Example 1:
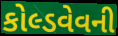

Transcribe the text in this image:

કોલ્ડવેવની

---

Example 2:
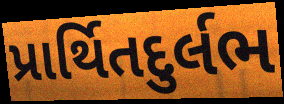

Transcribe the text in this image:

પ્રાર્થિતદુર્લભ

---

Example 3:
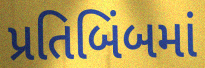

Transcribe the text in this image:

પ્રતિબિંબમાં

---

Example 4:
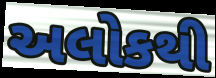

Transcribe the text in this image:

અલોકથી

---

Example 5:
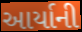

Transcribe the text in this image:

આર્યાની